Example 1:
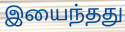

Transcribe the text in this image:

இயைந்தது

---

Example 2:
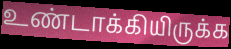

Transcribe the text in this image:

உண்டாக்கியிருக்க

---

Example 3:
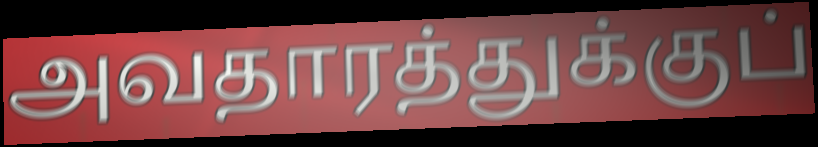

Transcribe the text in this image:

அவதாரத்துக்குப்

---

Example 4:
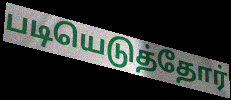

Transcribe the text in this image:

படியெடுத்தோர்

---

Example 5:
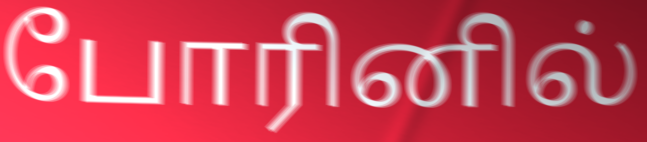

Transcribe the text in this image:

போரினில்